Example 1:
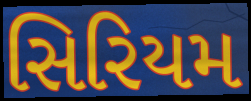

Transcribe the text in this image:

સિરિયમ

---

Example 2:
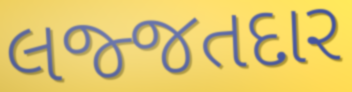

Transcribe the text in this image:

લજ્જતદાર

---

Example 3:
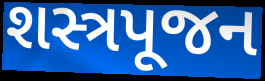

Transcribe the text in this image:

શસ્ત્રપૂજન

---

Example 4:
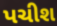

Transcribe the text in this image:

પચીશ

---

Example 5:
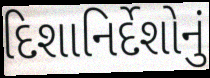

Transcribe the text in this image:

દિશાનિર્દેશોનું